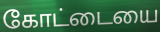
கோட்டையை